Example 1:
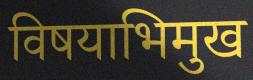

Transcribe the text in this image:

विषयाभिमुख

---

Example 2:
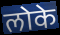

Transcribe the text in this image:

लोके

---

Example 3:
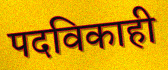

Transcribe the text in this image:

पदविकाही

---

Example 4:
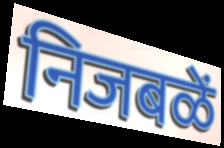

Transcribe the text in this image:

निजबळें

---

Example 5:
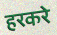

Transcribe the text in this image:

हरकरे